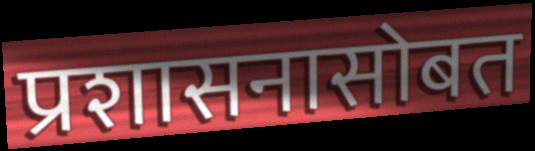
प्रशासनासोबत